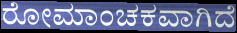
ರೋಮಾಂಚಕವಾಗಿದೆ